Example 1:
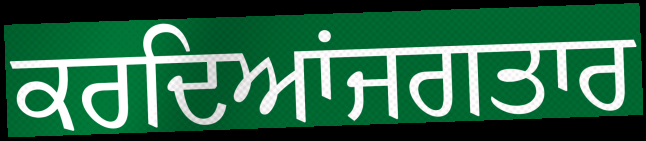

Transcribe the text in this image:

ਕਰਦਿਆਂਜਗਤਾਰ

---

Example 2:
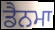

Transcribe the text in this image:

ਡੈਨਮਾ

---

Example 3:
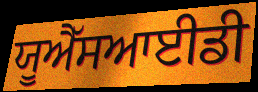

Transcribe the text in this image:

ਯੂਐੱਸਆਈਡੀ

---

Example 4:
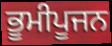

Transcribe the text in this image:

ਭੂਮੀਪੂਜਨ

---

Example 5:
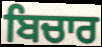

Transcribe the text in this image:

ਬਿਚਾਰ